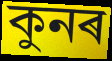
কুনৰ